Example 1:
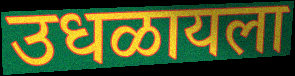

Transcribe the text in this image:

उधळायला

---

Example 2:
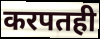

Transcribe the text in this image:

करपतही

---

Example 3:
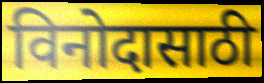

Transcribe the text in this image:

विनोदासाठी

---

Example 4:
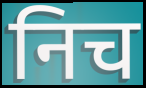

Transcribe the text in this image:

निच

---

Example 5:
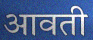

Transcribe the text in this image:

आवती